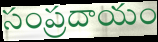
సంప్రదాయం